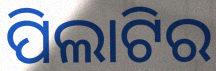
ପିଲାଟିର